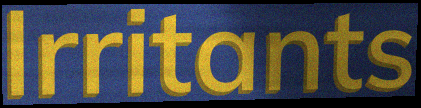
Irritants